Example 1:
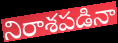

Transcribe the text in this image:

నిరాశపడినా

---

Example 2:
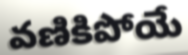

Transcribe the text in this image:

వణికిపోయే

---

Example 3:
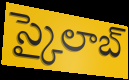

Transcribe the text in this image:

స్కైలాబ్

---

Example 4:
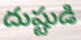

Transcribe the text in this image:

దుష్టుడి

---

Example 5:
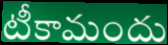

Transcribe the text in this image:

టీకామందు